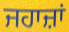
ਜਹਾਜ਼ਾਂ